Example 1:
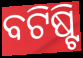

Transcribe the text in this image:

ବଟିଷ୍ଟି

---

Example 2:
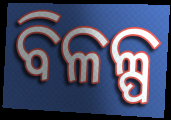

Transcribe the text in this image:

ବିଳଳ୍ପ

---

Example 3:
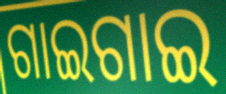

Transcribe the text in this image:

ଗାଇଗାଇ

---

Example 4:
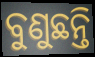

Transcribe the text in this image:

ବୁଣୁଛନ୍ତି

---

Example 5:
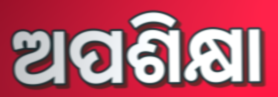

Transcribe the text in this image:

ଅପଶିକ୍ଷା